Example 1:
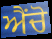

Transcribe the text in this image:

ਐਂਚੋ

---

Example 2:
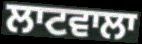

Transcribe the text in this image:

ਲਾਟਵਾਲਾ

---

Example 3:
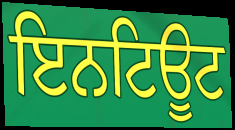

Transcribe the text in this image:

ਇਨਟਿਊਟ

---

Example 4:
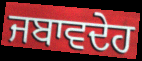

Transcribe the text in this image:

ਜਬਾਵਦੇਹ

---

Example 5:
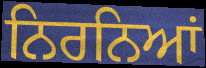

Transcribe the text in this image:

ਨਿਰਨਿਆਂ